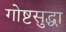
गोष्टसुद्धा